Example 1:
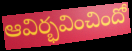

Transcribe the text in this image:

ఆవిర్భవించిందో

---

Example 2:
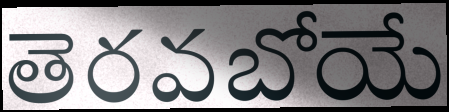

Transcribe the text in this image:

తెరవబోయే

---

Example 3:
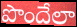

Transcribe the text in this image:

పొందేలా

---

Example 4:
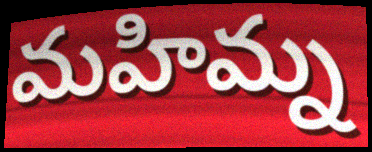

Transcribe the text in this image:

మహిమ్న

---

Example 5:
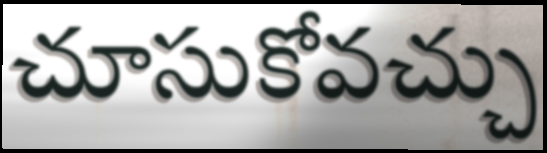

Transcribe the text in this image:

చూసుకోవచ్చు